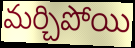
మర్చిపోయి